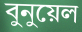
বুনুয়েল